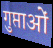
गुप्ताओं